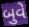
બુવે